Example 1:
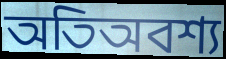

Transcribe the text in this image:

অতিঅবশ্য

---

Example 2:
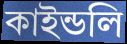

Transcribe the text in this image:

কাইন্ডলি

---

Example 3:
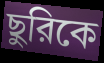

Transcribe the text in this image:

ছুরিকে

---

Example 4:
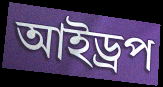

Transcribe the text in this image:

আইড্রপ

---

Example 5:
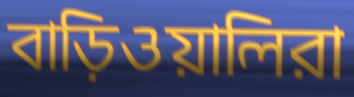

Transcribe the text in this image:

বাড়িওয়ালিরা